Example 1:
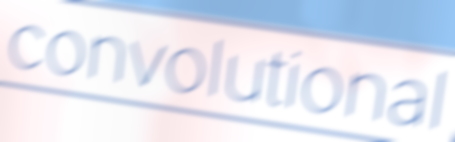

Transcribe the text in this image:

convolutional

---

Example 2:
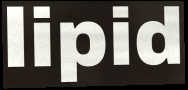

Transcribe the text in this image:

lipid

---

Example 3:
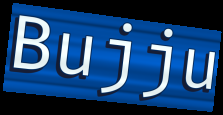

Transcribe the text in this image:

Bujju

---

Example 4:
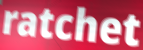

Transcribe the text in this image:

ratchet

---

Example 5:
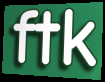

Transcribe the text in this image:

ftk